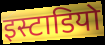
इस्टाडियो